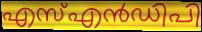
എസ്എൻഡിപി